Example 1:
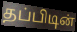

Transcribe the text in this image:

தப்பிடின்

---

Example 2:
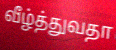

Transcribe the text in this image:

வீழ்த்துவதா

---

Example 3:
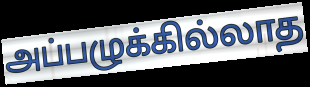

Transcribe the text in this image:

அப்பழுக்கில்லாத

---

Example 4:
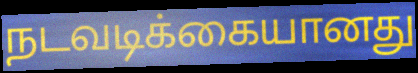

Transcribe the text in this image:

நடவடிக்கையானது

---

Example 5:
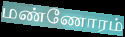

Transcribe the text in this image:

மண்ணோரம்